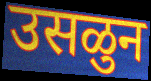
उसळुन